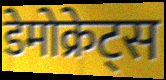
डेमोक्रेट्स